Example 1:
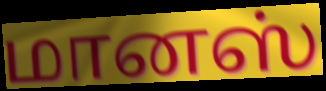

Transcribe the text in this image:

மானஸ்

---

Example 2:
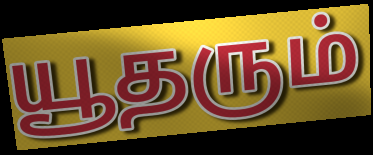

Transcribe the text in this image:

யூதரும்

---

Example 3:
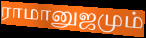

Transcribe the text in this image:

ராமானுஜமும்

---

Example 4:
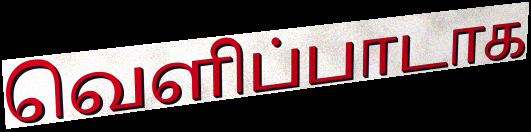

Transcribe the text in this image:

வெளிப்பாடாக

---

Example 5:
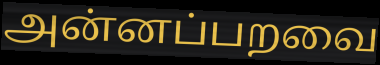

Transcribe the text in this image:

அன்னப்பறவை